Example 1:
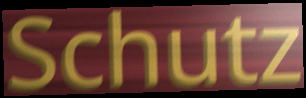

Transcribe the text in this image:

Schutz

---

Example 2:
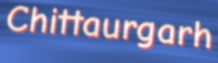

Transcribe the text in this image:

Chittaurgarh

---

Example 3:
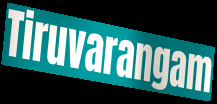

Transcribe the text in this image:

Tiruvarangam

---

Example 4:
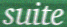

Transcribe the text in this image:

suite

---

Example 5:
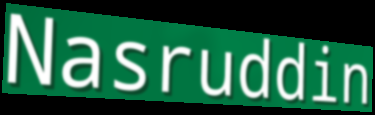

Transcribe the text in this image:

Nasruddin